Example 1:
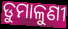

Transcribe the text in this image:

ଡୁମାଳୁଣୀ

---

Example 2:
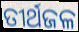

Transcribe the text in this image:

ତୀର୍ଥଜଳ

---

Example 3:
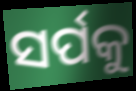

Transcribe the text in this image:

ସର୍ପକୁ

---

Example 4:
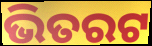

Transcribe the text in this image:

ଭିତରଟ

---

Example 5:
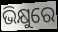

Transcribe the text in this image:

ଭିକ୍ଷୁରେ